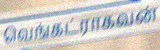
வெங்கட்ராகவன்